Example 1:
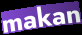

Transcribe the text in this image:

makan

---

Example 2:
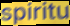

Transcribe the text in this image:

spiritu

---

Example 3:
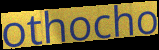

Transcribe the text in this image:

othocho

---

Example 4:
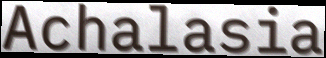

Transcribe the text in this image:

Achalasia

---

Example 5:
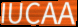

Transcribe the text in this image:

IUCAA